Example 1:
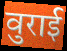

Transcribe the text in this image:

वुराई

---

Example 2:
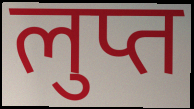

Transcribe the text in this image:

लुप्‍त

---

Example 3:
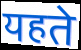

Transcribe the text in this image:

यहते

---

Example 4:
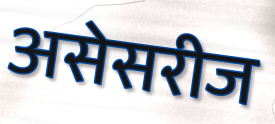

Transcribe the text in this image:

असेसरीज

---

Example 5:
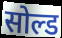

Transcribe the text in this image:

सोल्ड